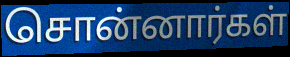
சொன்னார்கள்